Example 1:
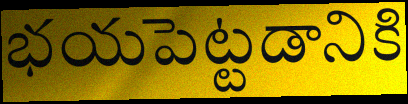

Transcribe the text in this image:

భయపెట్టడానికి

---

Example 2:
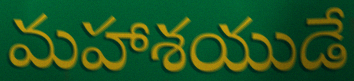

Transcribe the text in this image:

మహాశయుడే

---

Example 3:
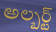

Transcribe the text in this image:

అల్బర్ట్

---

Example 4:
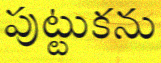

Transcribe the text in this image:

పుట్టుకను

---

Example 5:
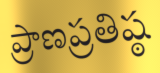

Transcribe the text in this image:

ప్రాణప్రతిష్ఠ